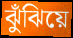
ঝুঁঝিয়ে